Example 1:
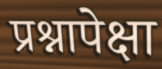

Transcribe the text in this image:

प्रश्नापेक्षा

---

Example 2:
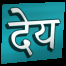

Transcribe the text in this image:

देय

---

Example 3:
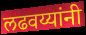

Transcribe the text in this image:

लढवय्यांनी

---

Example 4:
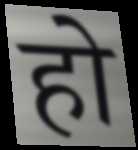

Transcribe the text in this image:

हो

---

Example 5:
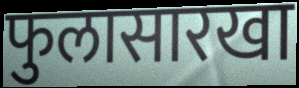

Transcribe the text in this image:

फुलासारखा